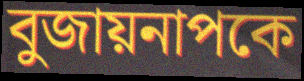
বুজায়নাপকে